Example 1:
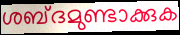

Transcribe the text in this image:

ശബ്ദമുണ്ടാക്കുക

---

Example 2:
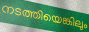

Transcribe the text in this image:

നടത്തിയെങ്കിലും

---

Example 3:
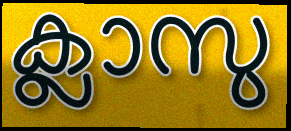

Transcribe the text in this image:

ക്ലാസു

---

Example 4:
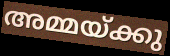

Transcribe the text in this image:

അമ്മയ്ക്കു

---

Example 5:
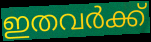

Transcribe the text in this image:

ഇതവർക്ക്